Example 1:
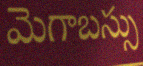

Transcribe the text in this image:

మెగాబస్సు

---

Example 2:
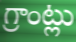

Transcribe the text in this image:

గ్రాంట్లు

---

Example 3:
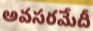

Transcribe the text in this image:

అవసరమేదీ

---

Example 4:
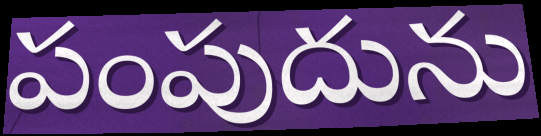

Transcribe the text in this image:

పంపుదును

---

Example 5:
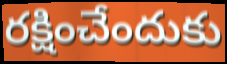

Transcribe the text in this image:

రక్షించేందుకు